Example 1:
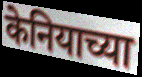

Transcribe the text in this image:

केनियाच्या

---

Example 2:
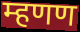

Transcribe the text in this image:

म्हणण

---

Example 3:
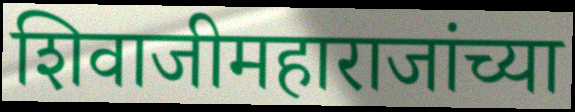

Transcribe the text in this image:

शिवाजीमहाराजांच्या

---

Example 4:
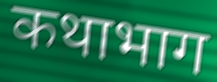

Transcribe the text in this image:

कथाभाग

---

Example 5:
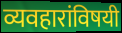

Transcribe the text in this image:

व्यवहारांविषयी